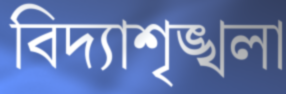
বিদ্যাশৃঙ্খলা